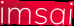
imsai